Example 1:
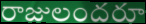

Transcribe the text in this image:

రాజులందరూ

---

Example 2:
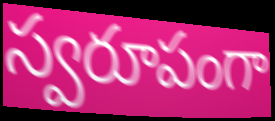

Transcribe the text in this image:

స్వరూపంగా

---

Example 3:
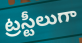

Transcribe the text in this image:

ట్రస్టీలుగా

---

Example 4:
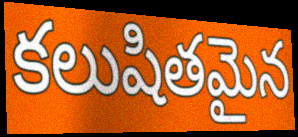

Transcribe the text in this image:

కలుషితమైన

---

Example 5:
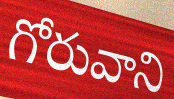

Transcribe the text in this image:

గోరువాని